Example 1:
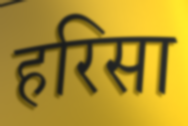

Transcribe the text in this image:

हरिसा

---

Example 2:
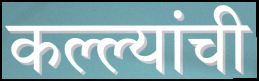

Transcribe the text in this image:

कल्ल्यांची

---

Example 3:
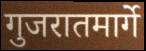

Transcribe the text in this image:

गुजरातमार्गे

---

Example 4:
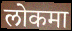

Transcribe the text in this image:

लोकमा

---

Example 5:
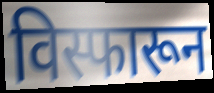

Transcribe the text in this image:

विस्फारून